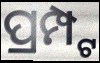
ପ୍ରମ୍ପ୍ଟ